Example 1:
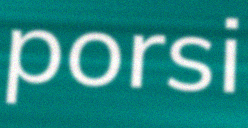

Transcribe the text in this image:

porsi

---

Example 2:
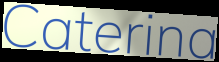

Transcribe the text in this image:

Caterina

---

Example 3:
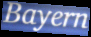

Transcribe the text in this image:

Bayern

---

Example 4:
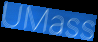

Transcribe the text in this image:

UMass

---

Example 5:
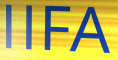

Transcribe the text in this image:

IIFA